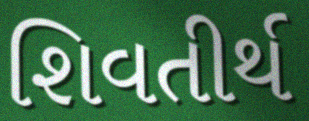
શિવતીર્થ